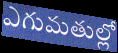
ఎగుమతుల్లో